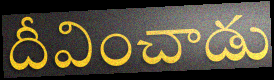
దీవించాడు